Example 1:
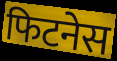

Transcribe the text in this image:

फिटनेस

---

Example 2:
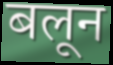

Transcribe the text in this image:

बलून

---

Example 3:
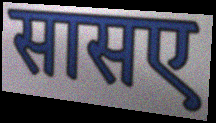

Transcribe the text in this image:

सासए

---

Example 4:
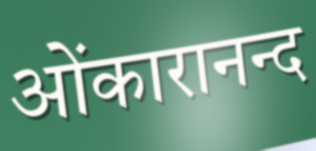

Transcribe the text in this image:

ओंकारानन्द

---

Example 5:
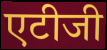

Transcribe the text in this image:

एटीजी